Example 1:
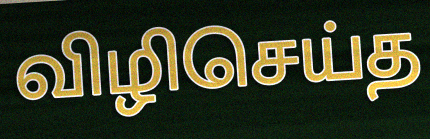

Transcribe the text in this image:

விழிசெய்த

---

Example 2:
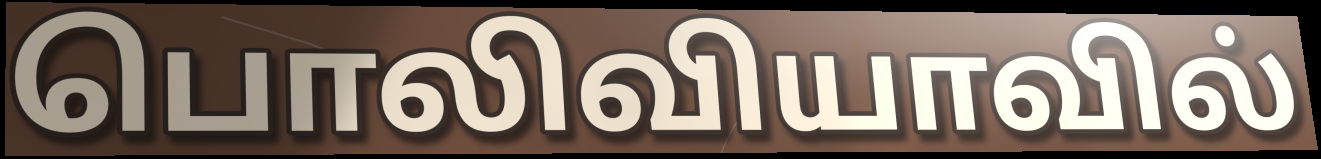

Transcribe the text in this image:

பொலிவியாவில்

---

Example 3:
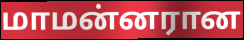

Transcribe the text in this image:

மாமன்னரான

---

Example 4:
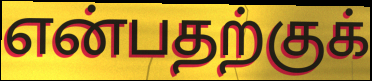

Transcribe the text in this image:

என்பதற்குக்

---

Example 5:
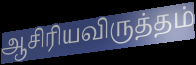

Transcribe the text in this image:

ஆசிரியவிருத்தம்